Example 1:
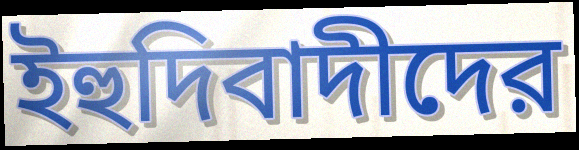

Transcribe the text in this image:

ইহুদিবাদীদের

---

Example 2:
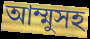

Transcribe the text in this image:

আম্মুসহ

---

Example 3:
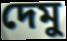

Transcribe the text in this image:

দেমু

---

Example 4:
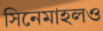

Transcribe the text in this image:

সিনেমাহলও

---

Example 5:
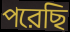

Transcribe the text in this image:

পরেছি